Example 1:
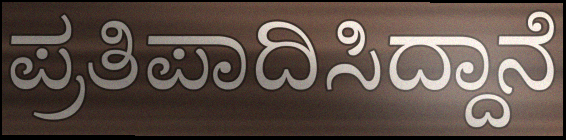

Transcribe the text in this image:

ಪ್ರತಿಪಾದಿಸಿದ್ದಾನೆ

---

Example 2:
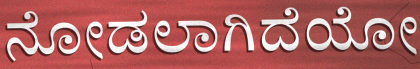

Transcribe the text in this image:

ನೋಡಲಾಗಿದೆಯೋ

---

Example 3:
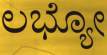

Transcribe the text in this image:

ಲಭ್ಯೋ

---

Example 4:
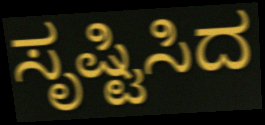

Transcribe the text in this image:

ಸೃಷ್ಟಿಸಿದ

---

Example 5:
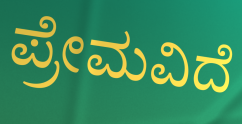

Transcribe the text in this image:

ಪ್ರೇಮವಿದೆ